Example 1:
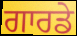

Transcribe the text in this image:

ਗਾਰਡੇ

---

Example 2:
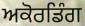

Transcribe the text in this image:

ਅਕੋਰਡਿੰਗ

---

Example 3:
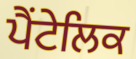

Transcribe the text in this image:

ਪੈਂਟੇਲਿਕ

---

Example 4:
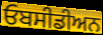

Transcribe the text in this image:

ਓਬਸੀਡੀਅਨ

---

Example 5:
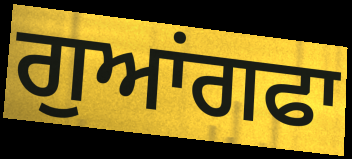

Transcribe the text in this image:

ਗੁਆਂਗਫਾ